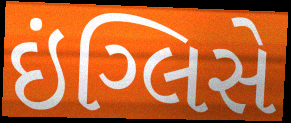
ઇંગ્લિસે